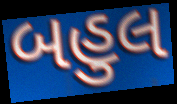
બહુલ